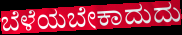
ಬೆಳೆಯಬೇಕಾದುದು